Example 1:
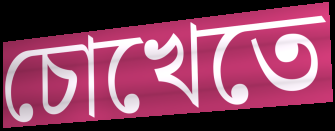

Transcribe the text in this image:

চোখেতে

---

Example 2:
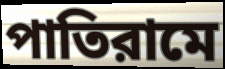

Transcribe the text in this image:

পাতিরামে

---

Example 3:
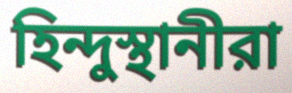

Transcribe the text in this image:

হিন্দুস্থানীরা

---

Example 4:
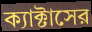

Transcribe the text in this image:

ক্যাক্টাসের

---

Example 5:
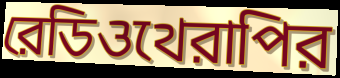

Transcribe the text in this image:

রেডিওথেরাপির